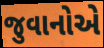
જુવાનોએ